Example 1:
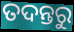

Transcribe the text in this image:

ତଦନ୍ତରୁ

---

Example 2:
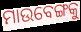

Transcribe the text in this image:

ମାଉବେଙ୍ଗକୁ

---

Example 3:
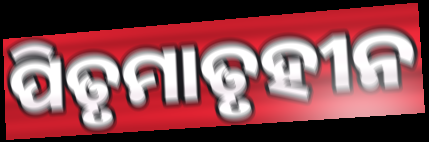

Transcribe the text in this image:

ପିତୃମାତୃହୀନ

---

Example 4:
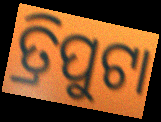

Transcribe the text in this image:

ତ୍ରିପୁଟା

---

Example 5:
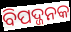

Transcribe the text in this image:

ବିପଦ୍ଜନକ